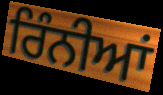
ਰਿੰਨੀਆਂ